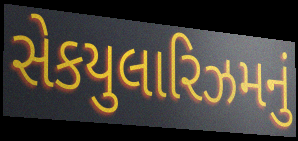
સેકયુલારિઝમનું